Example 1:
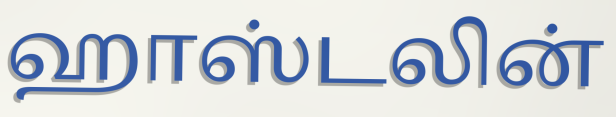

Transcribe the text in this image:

ஹாஸ்டலின்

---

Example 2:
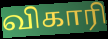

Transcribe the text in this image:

விகாரி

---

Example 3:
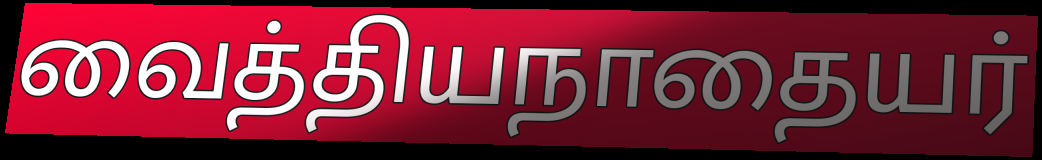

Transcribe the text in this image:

வைத்தியநாதையர்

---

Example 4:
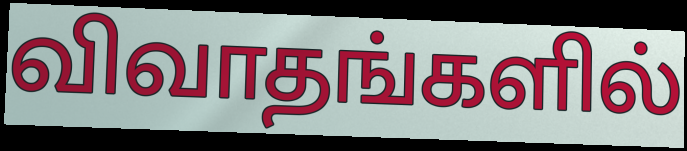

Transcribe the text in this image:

விவாதங்களில்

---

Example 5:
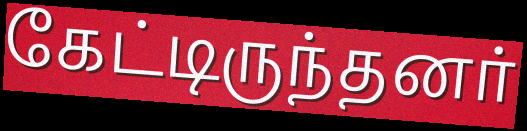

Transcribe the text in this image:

கேட்டிருந்தனர்